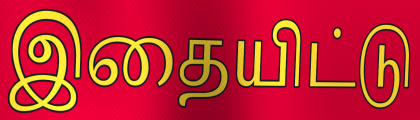
இதையிட்டு